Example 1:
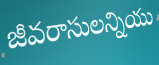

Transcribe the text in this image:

జీవరాసులన్నియు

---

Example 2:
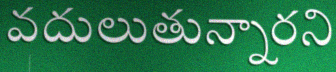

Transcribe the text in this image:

వదులుతున్నారని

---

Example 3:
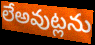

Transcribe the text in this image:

లేఅవుట్లను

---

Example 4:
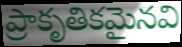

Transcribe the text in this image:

ప్రాకృతికమైనవి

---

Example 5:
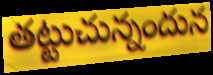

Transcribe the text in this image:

తట్టుచున్నందున